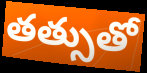
తత్సుతో